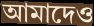
আমাদেও